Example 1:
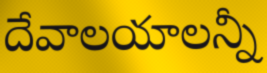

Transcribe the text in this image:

దేవాలయాలన్నీ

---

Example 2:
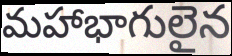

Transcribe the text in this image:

మహాభాగులైన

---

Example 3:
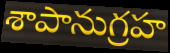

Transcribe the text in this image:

శాపానుగ్రహ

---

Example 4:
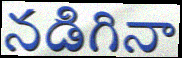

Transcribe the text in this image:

నడిగినా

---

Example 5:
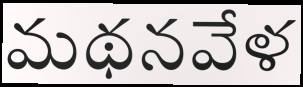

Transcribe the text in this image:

మథనవేళ